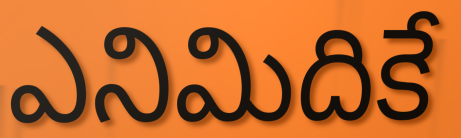
ఎనిమిదికే